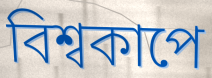
বিশ্বকাপে